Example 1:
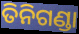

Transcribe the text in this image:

ତିନିଗଣ୍ଡା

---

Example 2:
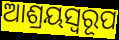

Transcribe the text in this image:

ଆଶ୍ରୟସ୍ୱରୂପ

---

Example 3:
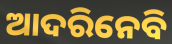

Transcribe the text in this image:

ଆଦରିନେବି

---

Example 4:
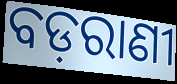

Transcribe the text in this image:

ବଡ଼ରାଣୀ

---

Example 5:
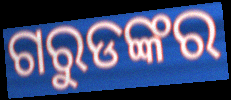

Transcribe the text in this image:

ଗରୁଡଙ୍କର